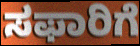
ಸಫಾರಿಗೆ